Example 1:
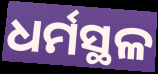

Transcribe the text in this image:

ଧର୍ମସ୍ଥଳ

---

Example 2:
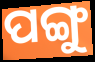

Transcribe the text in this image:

ପଙ୍ଗୁ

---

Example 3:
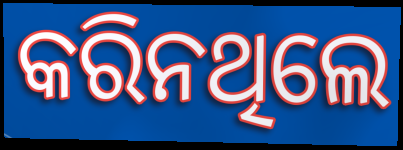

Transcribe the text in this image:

କରିନଥିଲେ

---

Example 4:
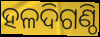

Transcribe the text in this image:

ହଳଦିଗଣ୍ଠି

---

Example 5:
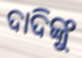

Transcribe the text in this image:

ଦାଦିଙ୍କୁ